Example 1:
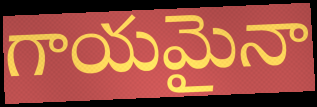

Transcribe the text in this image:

గాయమైనా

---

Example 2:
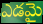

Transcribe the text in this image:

ఎడమై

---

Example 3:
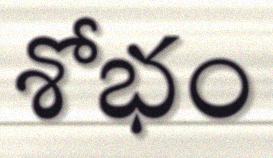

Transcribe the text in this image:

శోభం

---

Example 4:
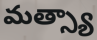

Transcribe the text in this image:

మత్స్యా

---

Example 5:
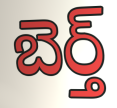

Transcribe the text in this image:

బెర్త్